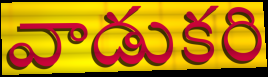
వాడుకరి